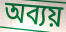
অব্যয়